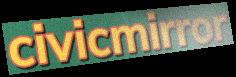
civicmirror